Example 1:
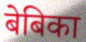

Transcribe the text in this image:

बेबिका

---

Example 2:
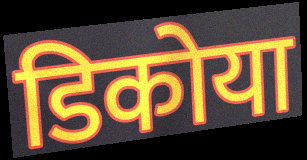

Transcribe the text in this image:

डिकोया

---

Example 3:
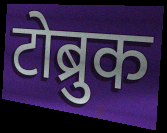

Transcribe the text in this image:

टोब्रुक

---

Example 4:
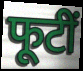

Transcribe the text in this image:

फूटीं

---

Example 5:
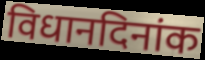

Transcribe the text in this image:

विधानदिनांक